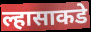
ल्हासाकडे